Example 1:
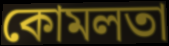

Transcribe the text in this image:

কোমলতা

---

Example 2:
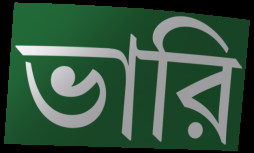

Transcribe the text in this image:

ভারি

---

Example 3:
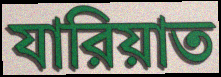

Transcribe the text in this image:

যারিয়াত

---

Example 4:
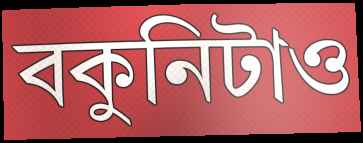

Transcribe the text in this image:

বকুনিটাও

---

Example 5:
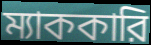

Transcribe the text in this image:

ম্যাককারি